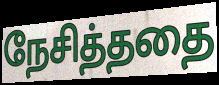
நேசித்ததை